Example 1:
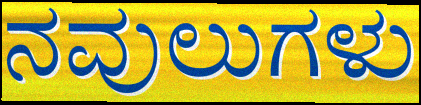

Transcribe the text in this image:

ನವುಲುಗಳು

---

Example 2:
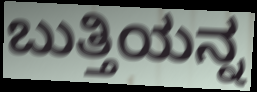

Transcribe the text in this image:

ಬುತ್ತಿಯನ್ನ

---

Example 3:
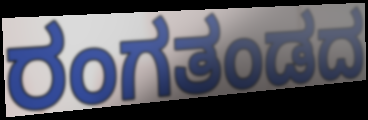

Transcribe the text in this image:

ರಂಗತಂಡದ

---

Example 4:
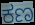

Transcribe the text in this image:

ಕಣ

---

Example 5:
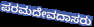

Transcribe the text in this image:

ಪರಮದೇವದಾಸರು